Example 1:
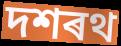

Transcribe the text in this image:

দশৰথ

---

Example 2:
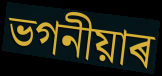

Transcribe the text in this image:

ভগনীয়াৰ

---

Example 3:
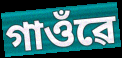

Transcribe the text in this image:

গাওঁৱে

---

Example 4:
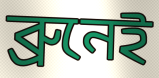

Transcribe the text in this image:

ব্ৰুনেই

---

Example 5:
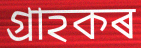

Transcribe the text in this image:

গ্ৰাহকৰ